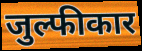
जुल्फीकार